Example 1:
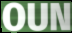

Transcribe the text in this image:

OUN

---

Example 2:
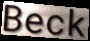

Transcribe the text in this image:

Beck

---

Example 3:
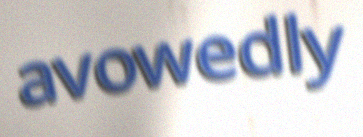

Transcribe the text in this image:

avowedly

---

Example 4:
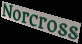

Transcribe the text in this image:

Norcross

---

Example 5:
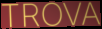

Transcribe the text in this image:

TROVA